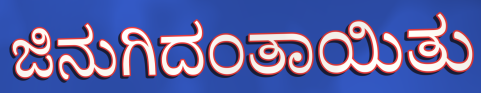
ಜಿನುಗಿದಂತಾಯಿತು